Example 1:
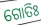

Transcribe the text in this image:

ଗୋତିଃ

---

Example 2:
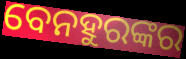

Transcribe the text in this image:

ବେନହୁରଙ୍କର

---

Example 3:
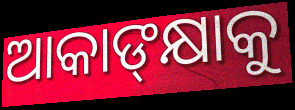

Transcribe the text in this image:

ଆକାଙ୍‍କ୍ଷାକୁ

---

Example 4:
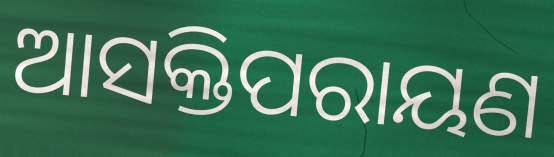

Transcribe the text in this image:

ଆସକ୍ତିପରାୟଣ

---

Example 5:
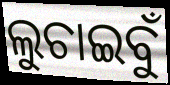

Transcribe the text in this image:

ଲୁଚାଇବୁଁ